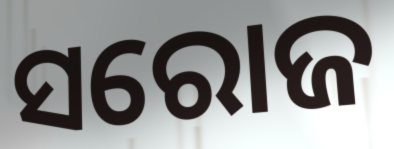
ସରୋଜ